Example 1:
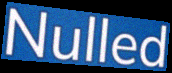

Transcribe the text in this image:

Nulled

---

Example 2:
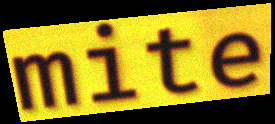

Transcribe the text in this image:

mite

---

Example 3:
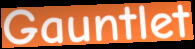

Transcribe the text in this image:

Gauntlet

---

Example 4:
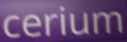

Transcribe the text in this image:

cerium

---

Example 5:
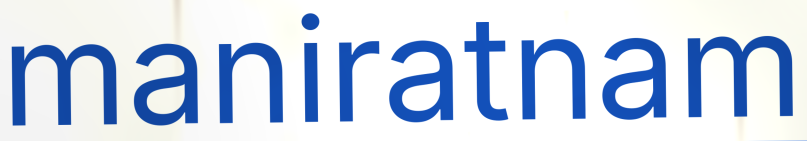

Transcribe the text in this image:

maniratnam